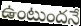
ఉంటుందనే